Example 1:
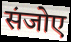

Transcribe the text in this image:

संजोए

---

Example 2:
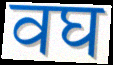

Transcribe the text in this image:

वघ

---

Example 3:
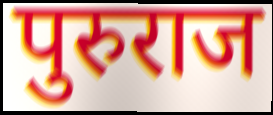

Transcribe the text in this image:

पुरुराज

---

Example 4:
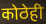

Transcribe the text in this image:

कोठेही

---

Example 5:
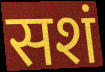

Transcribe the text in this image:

सशं